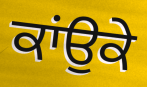
ਕਾਂਉਕੇ